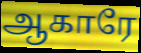
ஆகாரே